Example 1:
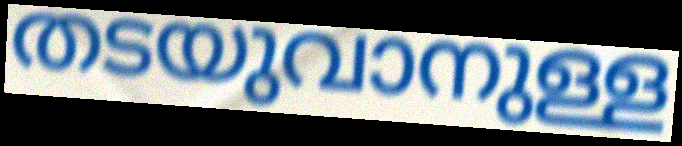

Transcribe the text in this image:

തടയുവാനുള്ള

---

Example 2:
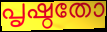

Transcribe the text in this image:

പൃഷ്ഠതോ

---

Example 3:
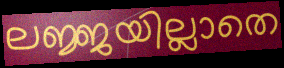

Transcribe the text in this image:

ലജ്ജയില്ലാതെ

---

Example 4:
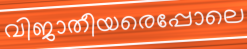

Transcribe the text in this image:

വിജാതീയരെപ്പോലെ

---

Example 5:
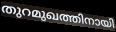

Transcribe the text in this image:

തുറമുഖത്തിനായി